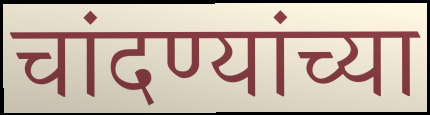
चांदण्यांच्या